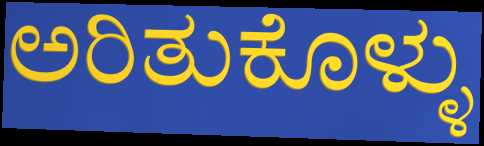
ಅರಿತುಕೊಳ್ಳು